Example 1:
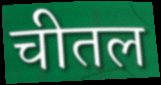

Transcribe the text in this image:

चीतल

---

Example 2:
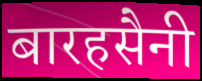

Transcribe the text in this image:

बारहसैनी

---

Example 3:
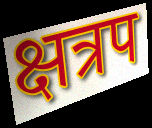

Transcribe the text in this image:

क्षत्रप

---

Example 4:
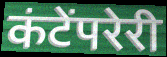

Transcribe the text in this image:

कंटेंपरेरी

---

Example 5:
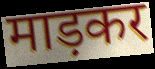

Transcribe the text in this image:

माड़कर